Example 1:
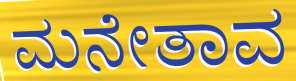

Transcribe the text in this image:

ಮನೇತಾವ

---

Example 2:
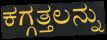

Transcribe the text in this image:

ಕಗ್ಗತ್ತಲನ್ನು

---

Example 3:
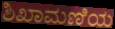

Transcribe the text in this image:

ಶಿಖಾಮಣಿಯ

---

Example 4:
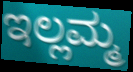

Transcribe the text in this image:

ಇಲ್ಲಮ್ಮ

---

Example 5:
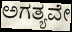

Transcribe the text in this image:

ಅಗತ್ಯವೇ